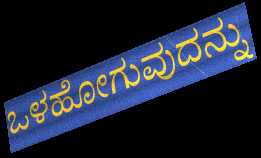
ಒಳಹೋಗುವುದನ್ನು